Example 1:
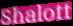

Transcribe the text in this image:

Shalott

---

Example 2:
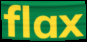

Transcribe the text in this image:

flax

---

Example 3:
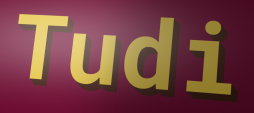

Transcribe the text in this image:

Tudi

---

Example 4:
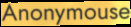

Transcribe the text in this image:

Anonymouse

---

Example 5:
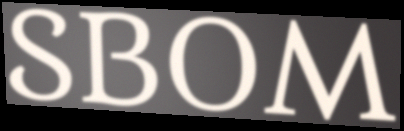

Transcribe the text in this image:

SBOM